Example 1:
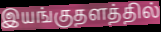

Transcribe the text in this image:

இயங்குதளத்தில்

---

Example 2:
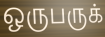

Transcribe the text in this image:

ஒருபருக்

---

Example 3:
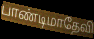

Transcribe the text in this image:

பாண்டிமாதேவி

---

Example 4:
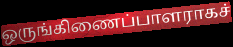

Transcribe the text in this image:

ஒருங்கிணைப்பாளராகச்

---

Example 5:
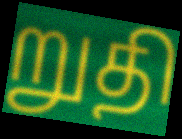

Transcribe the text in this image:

றுதி